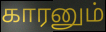
காரனும்